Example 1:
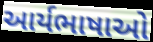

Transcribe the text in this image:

આર્યભાષાઓ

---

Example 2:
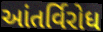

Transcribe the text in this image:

આંતર્વિરોધ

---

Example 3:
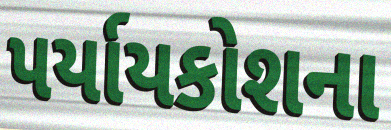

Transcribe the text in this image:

પર્યાયકોશના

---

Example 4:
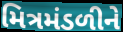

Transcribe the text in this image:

મિત્રમંડળીને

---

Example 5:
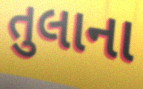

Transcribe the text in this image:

તુલાના